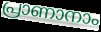
പ്രാണാനാം